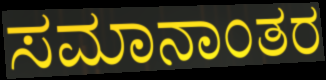
ಸಮಾನಾಂತರ